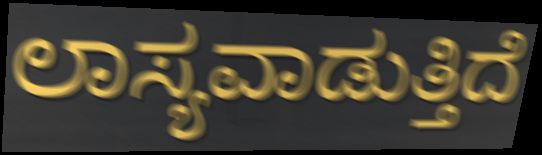
ಲಾಸ್ಯವಾಡುತ್ತಿದೆ